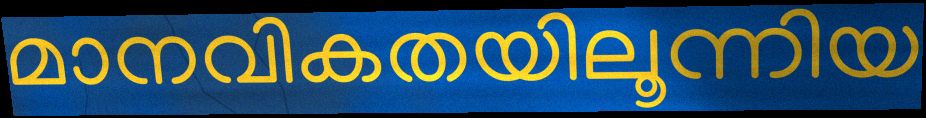
മാനവികതയിലൂന്നിയ